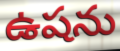
ఉషను